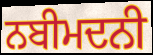
ਨਬੀਮਦਨੀ